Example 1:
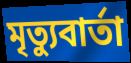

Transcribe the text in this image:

মৃত্যুবার্তা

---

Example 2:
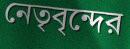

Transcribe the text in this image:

নেতৃবৃন্দের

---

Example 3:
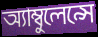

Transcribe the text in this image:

অ্যাম্বুলেন্সে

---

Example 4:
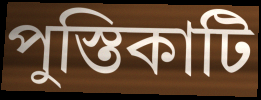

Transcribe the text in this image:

পুস্তিকাটি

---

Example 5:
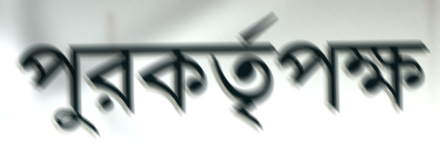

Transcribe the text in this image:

পুরকর্তৃপক্ষ